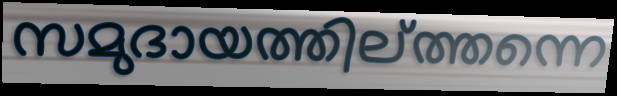
സമുദായത്തില്ത്തന്നെ